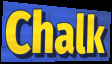
Chalk